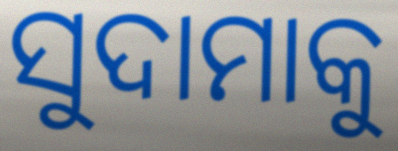
ସୁଦାମାକୁ